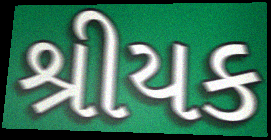
શ્રીયક